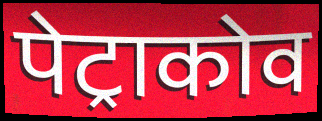
पेट्राकोव